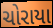
ચોરાયા